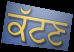
ਕੱਟਣ